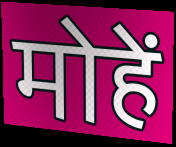
मोहें